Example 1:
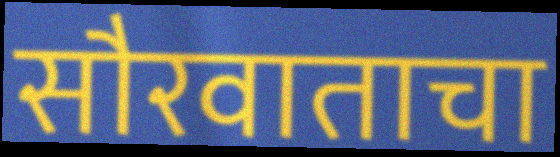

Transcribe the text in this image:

सौरवाताचा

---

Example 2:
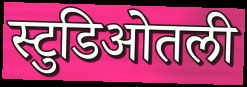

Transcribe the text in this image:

स्टुडिओतली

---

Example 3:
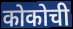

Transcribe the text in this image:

कोकोची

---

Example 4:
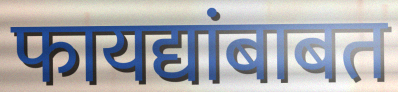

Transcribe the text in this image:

फायद्यांबाबत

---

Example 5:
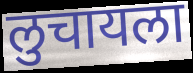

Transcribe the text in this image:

लुचायला